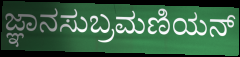
ಜ್ಞಾನಸುಬ್ರಮಣಿಯನ್